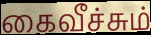
கைவீச்சும்